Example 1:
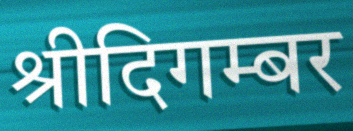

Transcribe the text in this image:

श्रीदिगम्बर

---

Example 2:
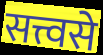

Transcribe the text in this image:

सत्त्वसे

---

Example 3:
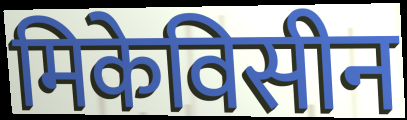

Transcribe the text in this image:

मिकेविसीन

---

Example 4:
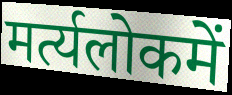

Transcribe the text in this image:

मर्त्यलोकमें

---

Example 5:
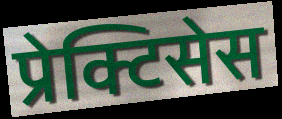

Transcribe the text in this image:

प्रेक्टिसेस